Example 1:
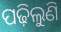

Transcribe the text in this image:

ପଢ଼ିଲୁଣି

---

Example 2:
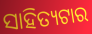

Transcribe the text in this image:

ସାହିତ୍ୟଟାର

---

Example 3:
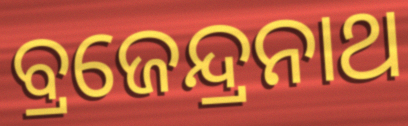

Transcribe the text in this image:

ବ୍ରଜେନ୍ଦ୍ରନାଥ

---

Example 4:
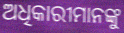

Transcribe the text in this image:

ଅଧିକାରୀମାନଙ୍କୁ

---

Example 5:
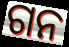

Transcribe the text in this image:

ଗନ